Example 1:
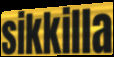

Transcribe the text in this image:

sikkilla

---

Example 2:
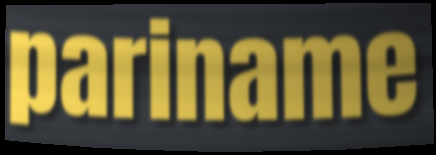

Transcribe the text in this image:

pariname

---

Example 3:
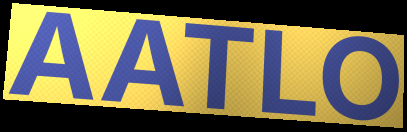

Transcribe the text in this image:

AATLO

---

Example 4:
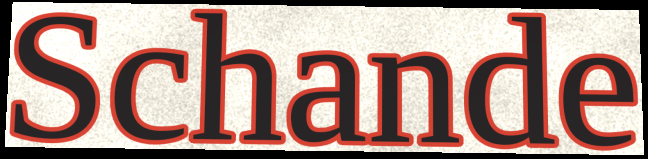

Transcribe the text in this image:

Schande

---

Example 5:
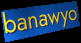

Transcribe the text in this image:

banawyo